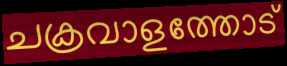
ചക്രവാളത്തോട്